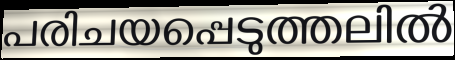
പരിചയപ്പെടുത്തലിൽ